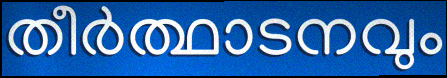
തീർത്ഥാടനവും